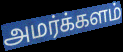
அமர்க்களம்